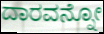
ದಾರವನ್ನೋ